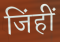
जिंहीं